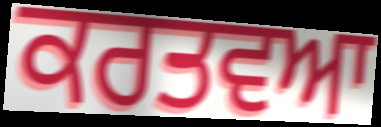
ਕਰਤਵਆ